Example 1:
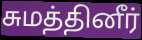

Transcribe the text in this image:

சுமத்தினீர்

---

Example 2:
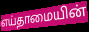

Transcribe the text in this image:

எய்தாமையின்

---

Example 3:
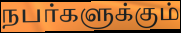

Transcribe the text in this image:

நபர்களுக்கும்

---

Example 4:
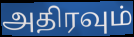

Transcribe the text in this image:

அதிரவும்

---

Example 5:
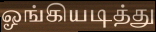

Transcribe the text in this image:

ஓங்கியடித்து